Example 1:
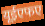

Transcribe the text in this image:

यूईएफए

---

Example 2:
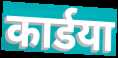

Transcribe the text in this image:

कार्डया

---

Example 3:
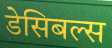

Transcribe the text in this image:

डेसिबल्स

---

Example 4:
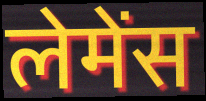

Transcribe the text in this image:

लेमेंस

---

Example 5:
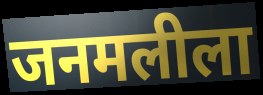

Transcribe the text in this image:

जनमलीला